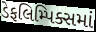
ડેફલિમ્પિક્સમાં